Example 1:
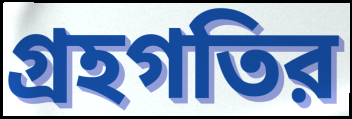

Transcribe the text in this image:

গ্রহগতির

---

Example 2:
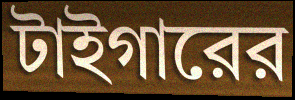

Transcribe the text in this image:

টাইগারের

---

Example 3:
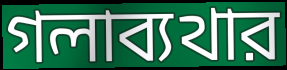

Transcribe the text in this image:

গলাব্যথার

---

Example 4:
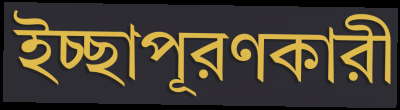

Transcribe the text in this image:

ইচ্ছাপূরণকারী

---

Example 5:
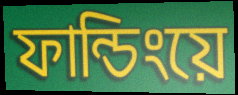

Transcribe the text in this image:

ফান্ডিংয়ে